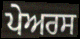
ਪੇਅਰਸ